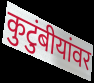
कुटुंबीयांवर